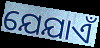
ଯେଯାଏଁ